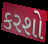
કરશો